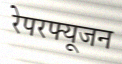
रेपरफ्यूजन